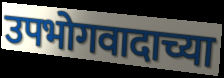
उपभोगवादाच्या